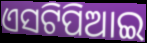
ଏସଟିପିଆଇ